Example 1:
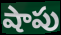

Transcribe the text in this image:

షాపు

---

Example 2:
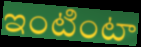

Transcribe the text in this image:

ఇంటింటా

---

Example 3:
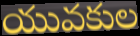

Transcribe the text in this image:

యువకుల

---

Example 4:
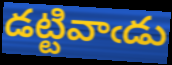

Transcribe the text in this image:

డట్టివాఁడు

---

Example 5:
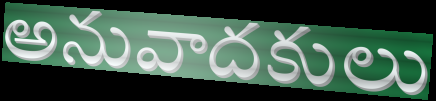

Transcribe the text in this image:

అనువాదకులు